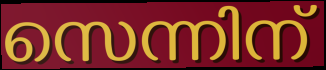
സെന്നിന്